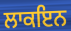
ਲਾਕਇਨ